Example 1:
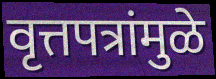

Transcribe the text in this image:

वृत्तपत्रांमुळे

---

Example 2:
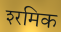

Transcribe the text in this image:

श्रमिक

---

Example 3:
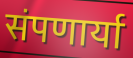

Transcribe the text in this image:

संपणार्या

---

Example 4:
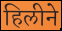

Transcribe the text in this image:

हिलीने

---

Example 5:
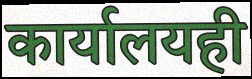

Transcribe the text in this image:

कार्यालयही